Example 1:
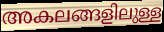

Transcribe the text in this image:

അകലങ്ങളിലുള്ള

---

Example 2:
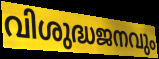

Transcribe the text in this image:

വിശുദ്ധജനവും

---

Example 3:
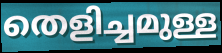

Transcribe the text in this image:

തെളിച്ചമുള്ള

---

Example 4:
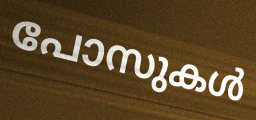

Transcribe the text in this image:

പോസുകൾ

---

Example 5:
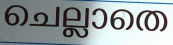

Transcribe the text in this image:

ചെല്ലാതെ